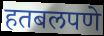
हतबलपणे